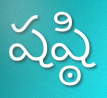
షష్ఠి